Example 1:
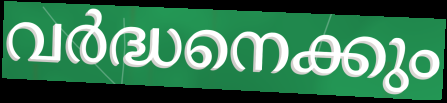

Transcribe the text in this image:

വർദ്ധനെക്കും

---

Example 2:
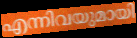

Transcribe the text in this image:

എന്നിവയുമായി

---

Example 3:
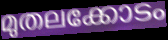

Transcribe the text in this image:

മുതലക്കോടം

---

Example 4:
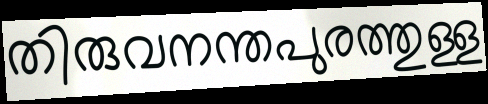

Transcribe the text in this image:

തിരുവനന്തപുരത്തുള്ള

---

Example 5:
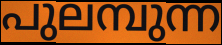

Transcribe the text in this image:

പുലമ്പുന്ന